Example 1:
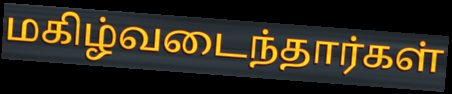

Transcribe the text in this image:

மகிழ்வடைந்தார்கள்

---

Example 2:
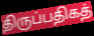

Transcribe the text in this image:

திருப்பதிகத்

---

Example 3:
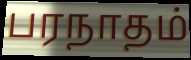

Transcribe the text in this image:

பரநாதம்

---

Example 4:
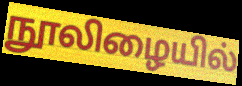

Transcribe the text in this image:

நூலிழையில்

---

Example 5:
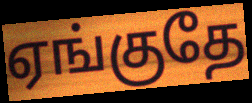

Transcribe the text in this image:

ஏங்குதே